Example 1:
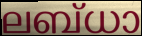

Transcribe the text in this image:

ലബ്ധാ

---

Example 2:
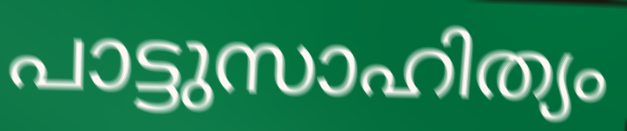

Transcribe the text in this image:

പാട്ടുസാഹിത്യം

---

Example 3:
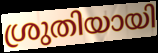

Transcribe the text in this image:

ശ്രുതിയായി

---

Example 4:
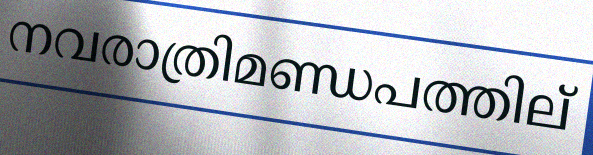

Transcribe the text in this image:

നവരാത്രിമണ്ഡപത്തില്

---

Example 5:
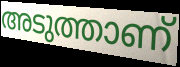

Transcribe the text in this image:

അടുത്താണ്